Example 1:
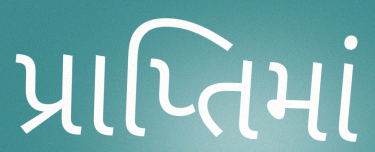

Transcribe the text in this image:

પ્રાપ્તિમાં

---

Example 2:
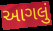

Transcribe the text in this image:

આગલું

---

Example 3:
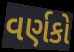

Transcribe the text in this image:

વર્ણકો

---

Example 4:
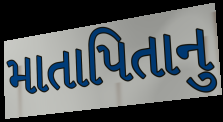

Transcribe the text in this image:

માતાપિતાનુ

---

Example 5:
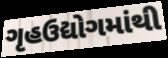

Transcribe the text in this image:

ગૃહઉદ્યોગમાંથી